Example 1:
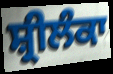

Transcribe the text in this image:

ਸ਼੍ਰੀਲੰਕਾ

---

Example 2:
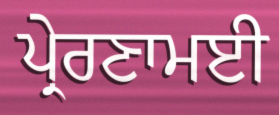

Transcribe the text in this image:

ਪ੍ਰੇਰਣਾਮਈ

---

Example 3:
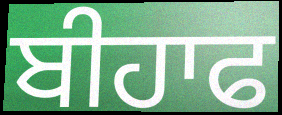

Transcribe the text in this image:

ਬੀਹਾਫ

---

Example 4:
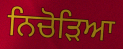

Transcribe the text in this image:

ਨਿਚੋੜਿਆ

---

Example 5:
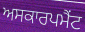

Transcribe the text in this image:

ਅਸਕਾਰਪਮੈਂਟ